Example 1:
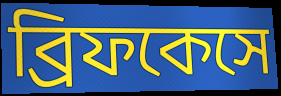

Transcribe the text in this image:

ব্রিফকেসে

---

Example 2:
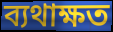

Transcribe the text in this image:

ব্যথাক্ষত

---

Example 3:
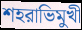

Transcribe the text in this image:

শহরাভিমুখী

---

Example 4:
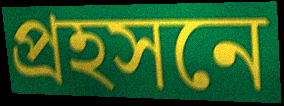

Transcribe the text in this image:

প্রহসনে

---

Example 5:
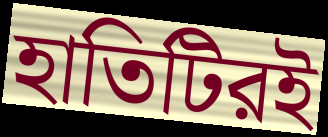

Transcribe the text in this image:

হাতিটিরই